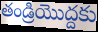
తండ్రియొద్దకు